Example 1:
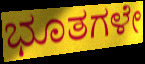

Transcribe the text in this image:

ಭೂತಗಳೇ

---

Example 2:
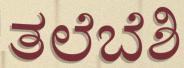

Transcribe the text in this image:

ತಲೆಬೆಶಿ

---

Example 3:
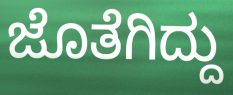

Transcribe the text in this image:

ಜೊತೆಗಿದ್ದು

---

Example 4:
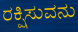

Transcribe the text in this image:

ರಕ್ಷಿಸುವನು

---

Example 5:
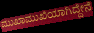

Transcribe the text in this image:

ಮುಖಾಮುಖಿಯಾಗಿದ್ದೇನೆ